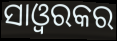
ସାଓ୍ୱରକର